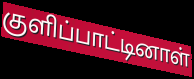
குளிப்பாட்டினாள்